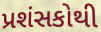
પ્રશંસકોથી